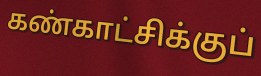
கண்காட்சிக்குப்